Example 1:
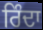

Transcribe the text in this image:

ਰਿੰਦਾ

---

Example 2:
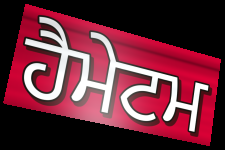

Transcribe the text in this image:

ਹੈਮੇਟਮ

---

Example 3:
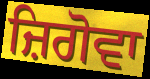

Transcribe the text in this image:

ਜ਼ਿਗੋਵਾ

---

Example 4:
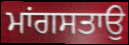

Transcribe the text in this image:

ਮਾਂਗਸਤਾਉ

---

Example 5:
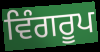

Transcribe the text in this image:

ਵਿੰਗਰੂਪ